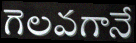
గెలవగానే